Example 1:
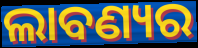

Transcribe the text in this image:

ଲାବଣ୍ୟର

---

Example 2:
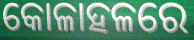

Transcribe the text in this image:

କୋଳାହଳରେ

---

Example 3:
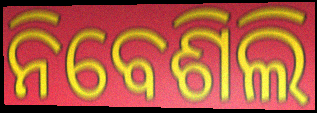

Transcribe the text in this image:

ନିବେଶିଲି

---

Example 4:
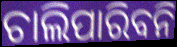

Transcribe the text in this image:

ଚାଲିପାରିବନି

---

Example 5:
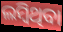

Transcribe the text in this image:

ଲମ୍ବିଥିବା